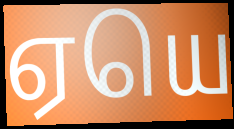
ஏயெ